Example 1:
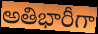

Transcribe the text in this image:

అతిభారీగా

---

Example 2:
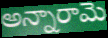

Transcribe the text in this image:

అన్నారామె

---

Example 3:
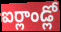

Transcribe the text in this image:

ఐర్లాండ్లో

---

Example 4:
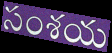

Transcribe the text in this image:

సంశయ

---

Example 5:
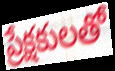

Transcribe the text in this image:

ప్రేక్షకులతో